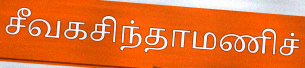
சீவகசிந்தாமணிச்